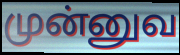
முன்னுவ